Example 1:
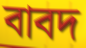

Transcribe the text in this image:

বাবদ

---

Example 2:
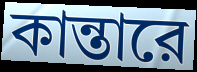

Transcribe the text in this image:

কান্তারে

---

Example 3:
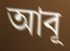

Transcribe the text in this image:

আবূ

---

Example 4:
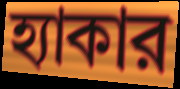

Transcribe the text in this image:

হ্যাকার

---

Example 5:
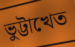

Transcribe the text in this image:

ভুট্টাখেত